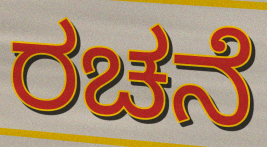
ರಚನೆ